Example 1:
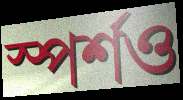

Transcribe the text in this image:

স্পর্শও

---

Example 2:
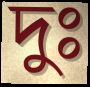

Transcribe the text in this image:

দুঃ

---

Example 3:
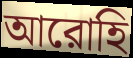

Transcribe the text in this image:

আরোহি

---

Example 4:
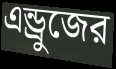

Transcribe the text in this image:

এন্ড্রুজের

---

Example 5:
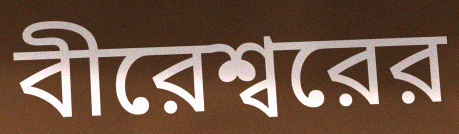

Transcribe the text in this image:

বীরেশ্বরের